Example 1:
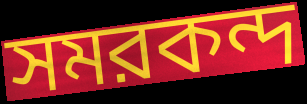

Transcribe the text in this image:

সমরকন্দ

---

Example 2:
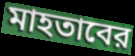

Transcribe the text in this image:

মাহতাবের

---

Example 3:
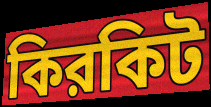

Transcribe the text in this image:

কিরকিট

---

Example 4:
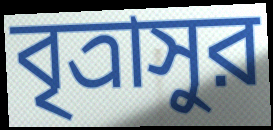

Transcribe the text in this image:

বৃত্রাসুর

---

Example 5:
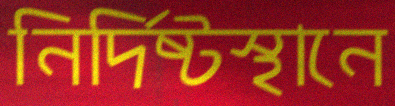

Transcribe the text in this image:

নির্দিষ্টস্থানে